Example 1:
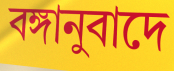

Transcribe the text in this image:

বঙ্গানুবাদে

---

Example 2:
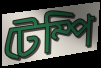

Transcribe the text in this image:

টেম্পি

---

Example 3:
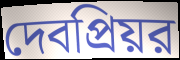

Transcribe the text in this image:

দেবপ্রিয়র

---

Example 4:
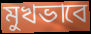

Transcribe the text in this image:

মুখভাবে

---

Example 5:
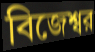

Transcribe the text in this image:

বিজেশ্বর